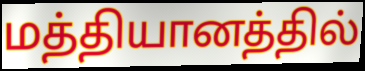
மத்தியானத்தில்